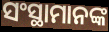
ସଂସ୍ଥାମାନଙ୍କ